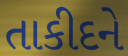
તાકીદને